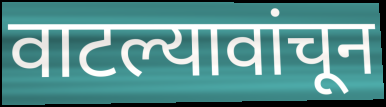
वाटल्यावांचून